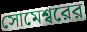
সোমেশ্বরের